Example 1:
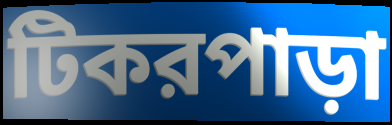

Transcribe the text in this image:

টিকরপাড়া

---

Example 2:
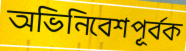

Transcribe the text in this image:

অভিনিবেশপূর্বক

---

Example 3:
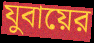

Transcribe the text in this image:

যুবায়ের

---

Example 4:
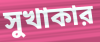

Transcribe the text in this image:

সুখাকার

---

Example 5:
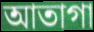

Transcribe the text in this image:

আতাগা